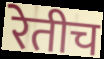
रेतीच